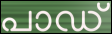
പാഡ്